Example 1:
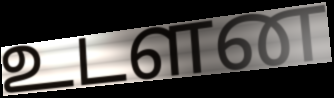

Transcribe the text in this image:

உடளன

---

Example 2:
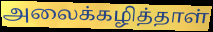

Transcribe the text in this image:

அலைக்கழித்தாள்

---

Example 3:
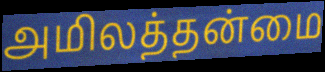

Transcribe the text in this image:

அமிலத்தன்மை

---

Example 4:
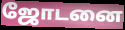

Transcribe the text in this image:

ஜோடனை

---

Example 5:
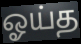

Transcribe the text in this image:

ஓய்த